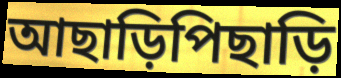
আছাড়িপিছাড়ি